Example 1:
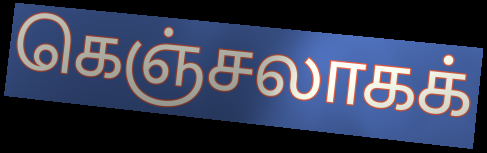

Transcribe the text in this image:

கெஞ்சலாகக்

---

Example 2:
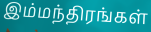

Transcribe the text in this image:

இம்மந்திரங்கள்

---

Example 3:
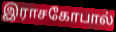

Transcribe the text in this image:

இராசகோபால்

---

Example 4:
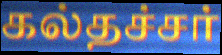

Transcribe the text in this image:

கல்தச்சர்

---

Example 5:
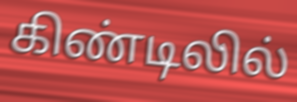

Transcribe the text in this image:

கிண்டிலில்